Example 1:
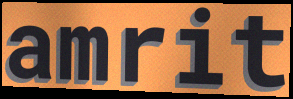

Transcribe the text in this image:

amrit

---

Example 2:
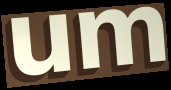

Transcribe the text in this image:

um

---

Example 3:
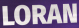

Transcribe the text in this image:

LORAN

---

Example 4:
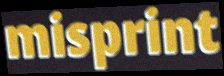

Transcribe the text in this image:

misprint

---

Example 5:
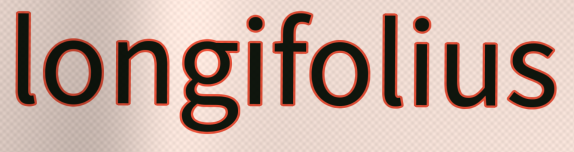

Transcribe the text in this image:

longifolius